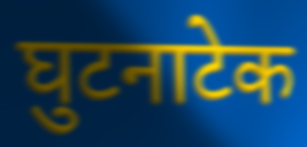
घुटनाटेक